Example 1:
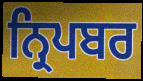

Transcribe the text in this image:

ਨ੍ਰਿਪਬਰ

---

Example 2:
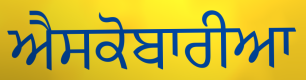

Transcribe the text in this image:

ਐਸਕੋਬਾਰੀਆ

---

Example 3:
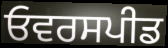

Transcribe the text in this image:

ਓਵਰਸਪੀਡ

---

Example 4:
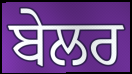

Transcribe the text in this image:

ਬੇਲਰ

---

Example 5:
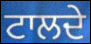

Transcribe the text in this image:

ਟਾਲਦੇ